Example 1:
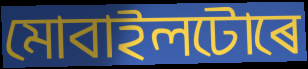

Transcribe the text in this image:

মোবাইলটোৰে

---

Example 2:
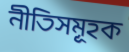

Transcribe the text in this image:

নীতিসমূহক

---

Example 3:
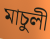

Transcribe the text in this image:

মাচুলী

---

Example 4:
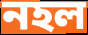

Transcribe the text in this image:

নহল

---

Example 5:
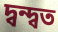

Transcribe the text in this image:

দ্বন্দ্বত